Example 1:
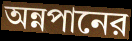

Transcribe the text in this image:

অন্নপানের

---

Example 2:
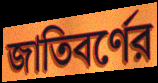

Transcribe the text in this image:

জাতিবর্ণের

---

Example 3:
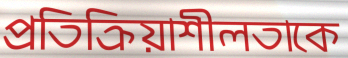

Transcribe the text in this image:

প্রতিক্রিয়াশীলতাকে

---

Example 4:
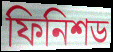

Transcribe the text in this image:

ফিনিশড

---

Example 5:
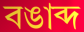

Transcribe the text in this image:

বঙাব্দ